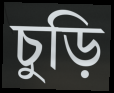
চুড়ি